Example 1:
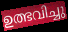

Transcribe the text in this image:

ഉത്ഭവിച്ചു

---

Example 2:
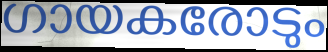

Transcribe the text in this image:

ഗായകരോടും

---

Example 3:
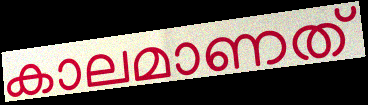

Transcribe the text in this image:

കാലമാണത്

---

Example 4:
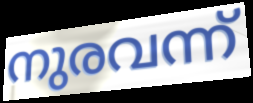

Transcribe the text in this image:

നുരവന്ന്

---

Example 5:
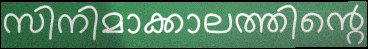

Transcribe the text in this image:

സിനിമാക്കാലത്തിന്റെ